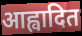
आह्वादित